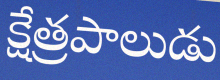
క్షేత్రపాలుడు